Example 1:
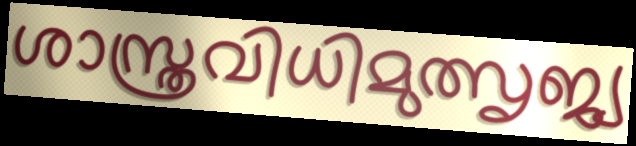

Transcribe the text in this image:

ശാസ്ത്രവിധിമുത്സൃജ്യ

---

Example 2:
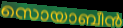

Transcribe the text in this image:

സൊയാബീൻ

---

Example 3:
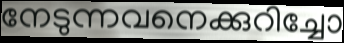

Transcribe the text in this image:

നേടുന്നവനെക്കുറിച്ചോ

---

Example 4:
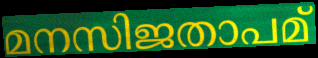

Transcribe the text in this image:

മനസിജതാപമ്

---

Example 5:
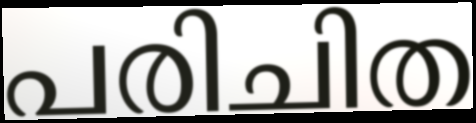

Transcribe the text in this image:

പരിചിത